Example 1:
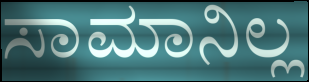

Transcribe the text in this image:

ಸಾಮಾನಿಲ್ಲ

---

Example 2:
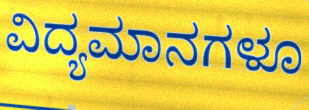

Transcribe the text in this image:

ವಿದ್ಯಮಾನಗಳೂ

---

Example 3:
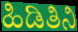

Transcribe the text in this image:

ಹಿಡಿತಿನಿ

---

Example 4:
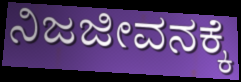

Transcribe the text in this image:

ನಿಜಜೀವನಕ್ಕೆ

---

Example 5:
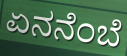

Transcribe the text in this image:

ಏನನೆಂಬೆ